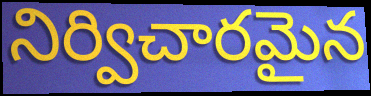
నిర్విచారమైన